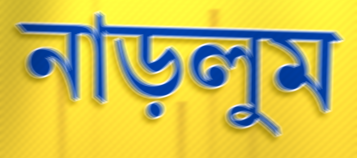
নাড়লুম